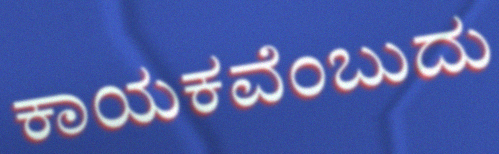
ಕಾಯಕವೆಂಬುದು